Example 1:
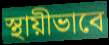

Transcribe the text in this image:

স্থায়ীভাবে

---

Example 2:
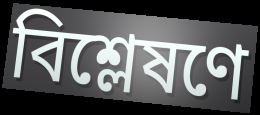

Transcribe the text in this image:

বিশ্লেষণে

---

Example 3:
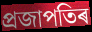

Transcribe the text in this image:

প্ৰজাপতিৰ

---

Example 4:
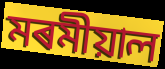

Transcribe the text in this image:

মৰমীয়াল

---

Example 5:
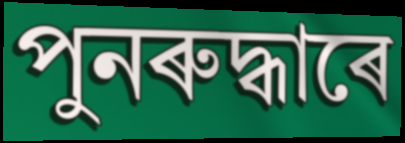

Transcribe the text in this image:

পুনৰুদ্ধাৰে